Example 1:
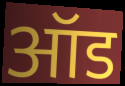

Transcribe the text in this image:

ऑड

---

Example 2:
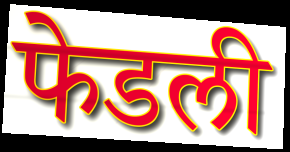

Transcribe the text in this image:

फेडली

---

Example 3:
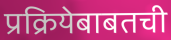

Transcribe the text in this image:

प्रक्रियेबाबतची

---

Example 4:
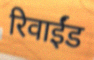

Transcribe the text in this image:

रिवाईंड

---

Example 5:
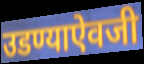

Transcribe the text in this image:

उडण्याऐवजी